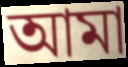
আমা